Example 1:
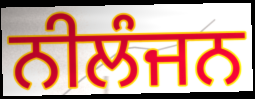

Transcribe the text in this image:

ਨੀਲੰਜਨ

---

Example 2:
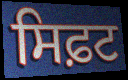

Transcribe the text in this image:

ਸਿਫ਼ਟ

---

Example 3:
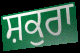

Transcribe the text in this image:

ਸ਼ਕੁਰਾ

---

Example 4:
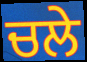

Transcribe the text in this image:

ਚਲੇ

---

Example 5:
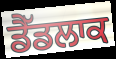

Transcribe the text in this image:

ਡੈੱਡਲਾਕ